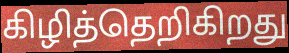
கிழித்தெறிகிறது